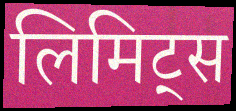
लिमिट्स